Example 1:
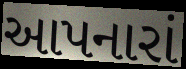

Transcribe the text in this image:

આપનારાં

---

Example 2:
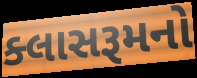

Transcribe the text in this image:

ક્લાસરૂમનો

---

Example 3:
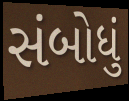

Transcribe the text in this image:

સંબોધું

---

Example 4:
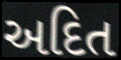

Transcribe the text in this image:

અદિત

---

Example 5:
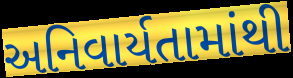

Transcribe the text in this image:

અનિવાર્યતામાંથી